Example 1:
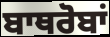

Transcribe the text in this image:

ਬਾਥਰੋਬਾਂ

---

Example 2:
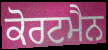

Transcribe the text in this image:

ਕੋਰਟਮੈਨ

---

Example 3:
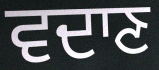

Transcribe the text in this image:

ਵਦਾਣ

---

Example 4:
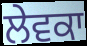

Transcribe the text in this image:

ਲੇਵਕਾ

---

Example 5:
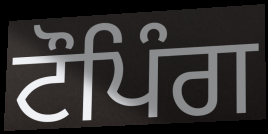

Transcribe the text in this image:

ਟੌਪਿੰਗ